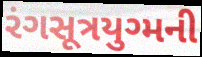
રંગસૂત્રયુગ્મની